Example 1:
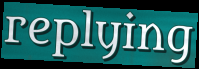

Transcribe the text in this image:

replying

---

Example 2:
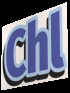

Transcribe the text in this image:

Chl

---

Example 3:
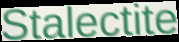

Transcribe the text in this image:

Stalectite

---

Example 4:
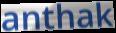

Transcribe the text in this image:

anthak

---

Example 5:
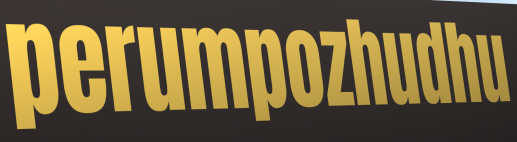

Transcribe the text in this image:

perumpozhudhu